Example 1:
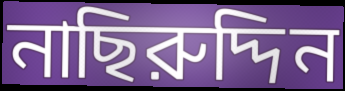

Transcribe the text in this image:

নাছিৰুদ্দিন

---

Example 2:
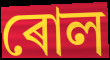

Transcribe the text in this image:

ৰোল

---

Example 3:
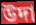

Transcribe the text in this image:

উদা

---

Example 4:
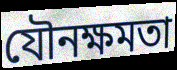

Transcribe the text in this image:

যৌনক্ষমতা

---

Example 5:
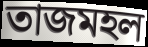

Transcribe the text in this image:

তাজমহল